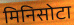
मिनिसोटा